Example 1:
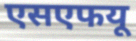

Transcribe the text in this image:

एसएफयू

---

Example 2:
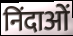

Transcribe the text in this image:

निंदाओं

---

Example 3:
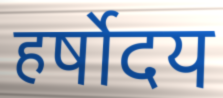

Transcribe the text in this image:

हर्षोदय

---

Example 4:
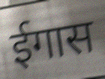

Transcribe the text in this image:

ईगास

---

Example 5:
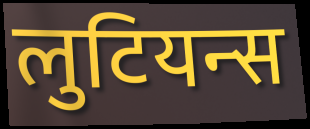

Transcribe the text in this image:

लुटियन्स